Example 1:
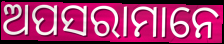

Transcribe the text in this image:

ଅପସରାମାନେ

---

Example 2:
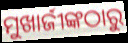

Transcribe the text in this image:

ମୁଖାର୍ଜୀଙ୍କଠାରୁ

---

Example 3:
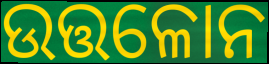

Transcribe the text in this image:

ଉତ୍ତଳୋନ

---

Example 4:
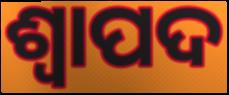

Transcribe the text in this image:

ଶ୍ୱାପଦ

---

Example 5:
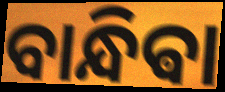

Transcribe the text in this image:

ବାନ୍ଧିଵା